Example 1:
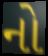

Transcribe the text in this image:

નો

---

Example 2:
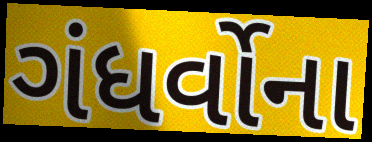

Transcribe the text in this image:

ગંધર્વોના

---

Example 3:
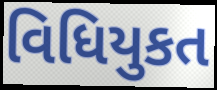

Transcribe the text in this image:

વિધિયુકત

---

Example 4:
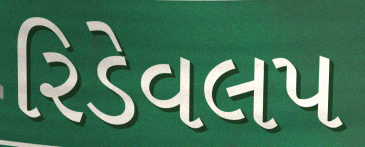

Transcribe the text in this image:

રિડેવલપ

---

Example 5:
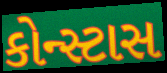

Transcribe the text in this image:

કોન્સ્ટાસ